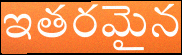
ఇతరమైన